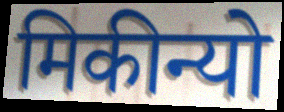
मिकीन्यो